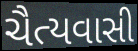
ચૈત્યવાસી